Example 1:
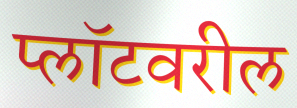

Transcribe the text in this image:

प्लॉटवरील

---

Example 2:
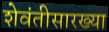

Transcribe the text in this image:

शेवंतीसारख्या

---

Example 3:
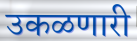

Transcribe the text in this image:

उकळणारी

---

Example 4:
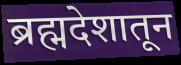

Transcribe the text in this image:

ब्रह्मदेशातून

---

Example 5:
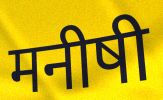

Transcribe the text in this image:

मनीषी